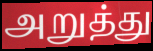
அறுத்து